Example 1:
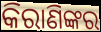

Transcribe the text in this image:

କିରାଣିଙ୍କର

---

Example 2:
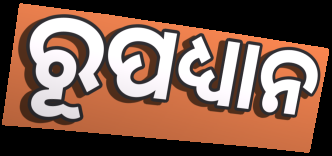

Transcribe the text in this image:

ରୂପଧ୍ୟାନ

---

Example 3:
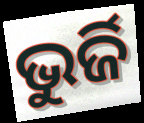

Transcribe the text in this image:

ଭୁର୍ଜି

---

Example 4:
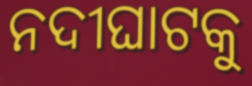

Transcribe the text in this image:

ନଦୀଘାଟକୁ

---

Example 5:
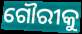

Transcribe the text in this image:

ଗୌରୀକୁ